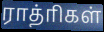
ராத்ரிகள்